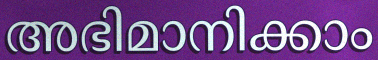
അഭിമാനിക്കാം